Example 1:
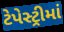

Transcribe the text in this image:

ટેપેસ્ટ્રીમાં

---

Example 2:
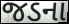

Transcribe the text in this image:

જડના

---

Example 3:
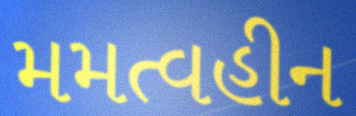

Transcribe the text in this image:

મમત્વહીન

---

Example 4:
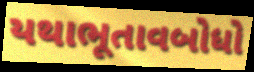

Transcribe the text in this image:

યથાભૂતાવબોધો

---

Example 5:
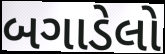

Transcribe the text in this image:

બગાડેલો